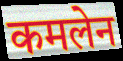
कमलेन